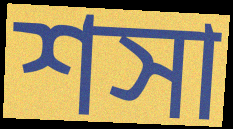
শসা